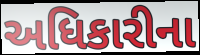
અધિકારીના